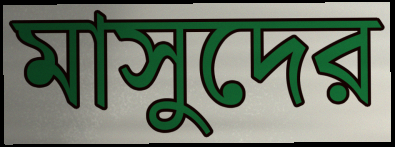
মাসুদের